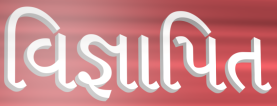
વિજ્ઞાપિત